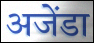
अजेंडा